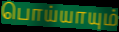
பொய்யாயும்